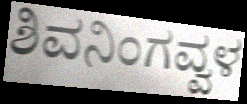
ಶಿವನಿಂಗವ್ವಳ